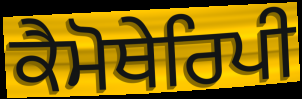
ਕੈਮੋਥੇਰਿਪੀ